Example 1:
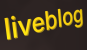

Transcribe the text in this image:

liveblog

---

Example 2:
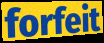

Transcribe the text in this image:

forfeit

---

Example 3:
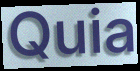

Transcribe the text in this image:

Quia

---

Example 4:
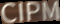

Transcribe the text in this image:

CIPM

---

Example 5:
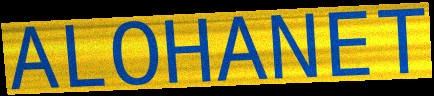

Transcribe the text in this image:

ALOHANET